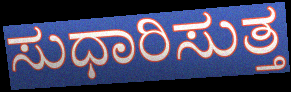
ಸುಧಾರಿಸುತ್ತ